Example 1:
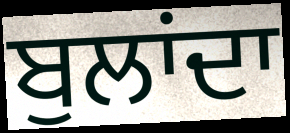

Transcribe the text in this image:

ਬੁਲਾਂਦਾ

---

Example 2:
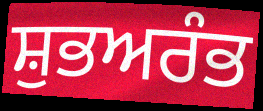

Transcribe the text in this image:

ਸ਼ੁਭਅਰੰਭ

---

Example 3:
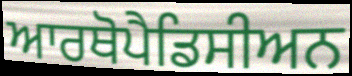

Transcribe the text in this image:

ਆਰਥੋਪੈਡਿਸੀਅਨ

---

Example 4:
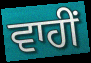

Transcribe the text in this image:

ਵਾਹੀਂ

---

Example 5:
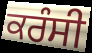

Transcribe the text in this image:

ਕਰੰਸੀ